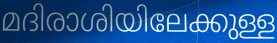
മദിരാശിയിലേക്കുള്ള